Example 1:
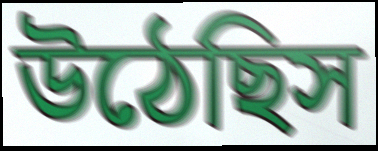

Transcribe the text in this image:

উঠেছিস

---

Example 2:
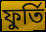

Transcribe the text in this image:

ফুর্তি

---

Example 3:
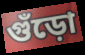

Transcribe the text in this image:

গুঁড়ো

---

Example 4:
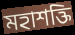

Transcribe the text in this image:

মহাশক্তি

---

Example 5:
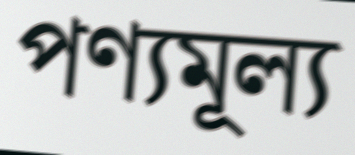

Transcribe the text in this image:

পণ্যমূল্য